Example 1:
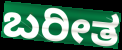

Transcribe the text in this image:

ಬರೀತ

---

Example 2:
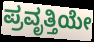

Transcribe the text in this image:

ಪ್ರವೃತ್ತಿಯೇ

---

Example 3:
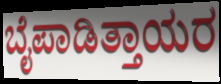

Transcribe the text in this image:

ಬೈಪಾಡಿತ್ತಾಯರ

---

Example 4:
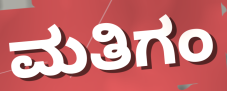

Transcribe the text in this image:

ಮತಿಗಂ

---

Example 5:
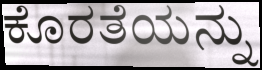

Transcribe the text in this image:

ಕೊರತೆಯನ್ನು